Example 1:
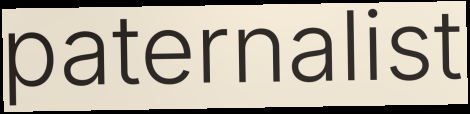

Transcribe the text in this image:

paternalist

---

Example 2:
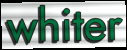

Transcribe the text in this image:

whiter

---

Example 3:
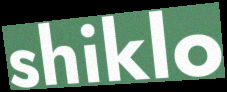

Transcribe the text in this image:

shiklo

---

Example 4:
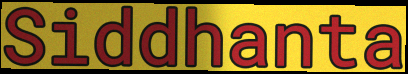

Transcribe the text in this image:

Siddhanta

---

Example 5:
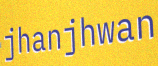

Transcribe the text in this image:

jhanjhwan